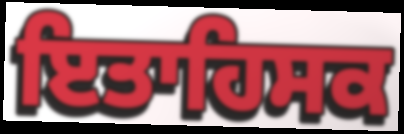
ਇਤਾਹਿਸਕ